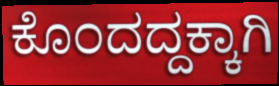
ಕೊಂದದ್ದಕ್ಕಾಗಿ